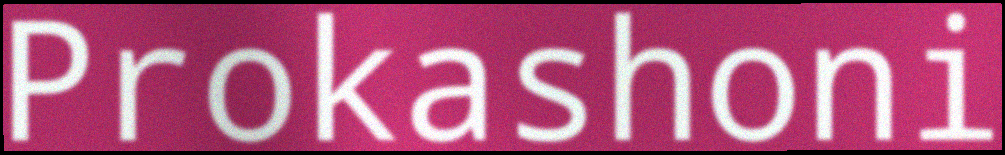
Prokashoni